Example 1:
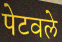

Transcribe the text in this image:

पेटवले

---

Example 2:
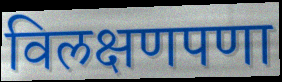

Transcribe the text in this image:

विलक्षणपणा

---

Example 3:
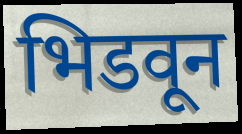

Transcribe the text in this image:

भिडवून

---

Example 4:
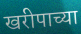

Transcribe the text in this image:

खरीपाच्या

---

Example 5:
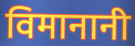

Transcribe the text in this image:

विमानानी